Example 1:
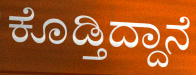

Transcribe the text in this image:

ಕೊಡ್ತಿದ್ದಾನೆ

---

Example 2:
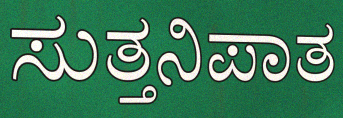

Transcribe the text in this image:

ಸುತ್ತನಿಪಾತ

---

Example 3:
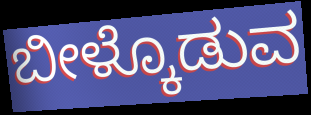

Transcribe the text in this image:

ಬೀಳ್ಕೊಡುವ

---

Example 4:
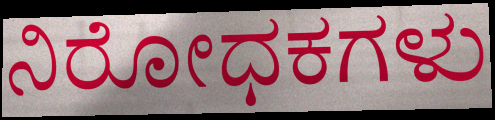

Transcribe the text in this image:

ನಿರೋಧಕಗಳು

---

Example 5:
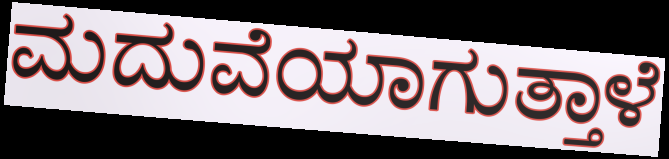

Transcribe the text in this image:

ಮದುವೆಯಾಗುತ್ತಾಳೆ